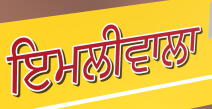
ਇਮਲੀਵਾਲਾ